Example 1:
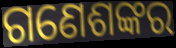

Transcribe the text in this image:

ଗଣେଶଙ୍କର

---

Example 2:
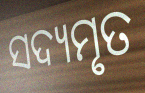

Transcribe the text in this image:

ସଦ୍ୟମୃତ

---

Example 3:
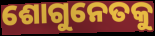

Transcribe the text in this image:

ଶୋଗୁନେତକୁ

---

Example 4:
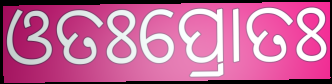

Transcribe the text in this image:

ଓତଃପ୍ରୋତଃ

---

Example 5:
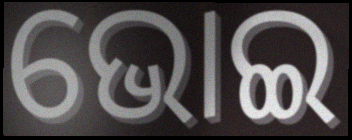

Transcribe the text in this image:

ଭୋଇ